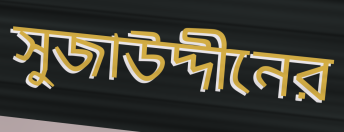
সুজাউদ্দীনের